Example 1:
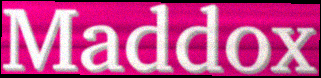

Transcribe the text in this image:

Maddox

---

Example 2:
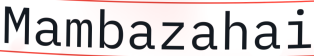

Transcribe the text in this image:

Mambazahai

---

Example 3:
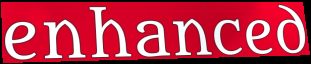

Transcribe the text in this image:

enhanced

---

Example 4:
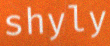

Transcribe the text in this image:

shyly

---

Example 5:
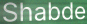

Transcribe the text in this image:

Shabde